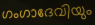
ഗംഗാദേവിയും